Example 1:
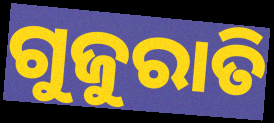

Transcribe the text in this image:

ଗୁଜୁରାତି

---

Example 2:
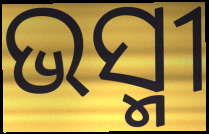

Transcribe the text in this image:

ଭସ୍ମୀ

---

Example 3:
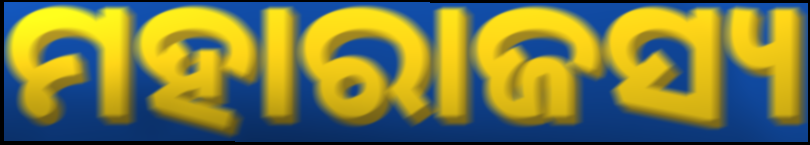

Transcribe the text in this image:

ମହାରାଜସ୍ୟ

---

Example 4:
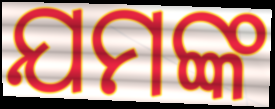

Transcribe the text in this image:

ଯମଙ୍କ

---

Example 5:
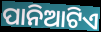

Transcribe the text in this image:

ପାନିଆଟିଏ